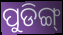
ପୁଡିଙ୍ଗ୍